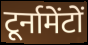
टूर्नामेंटों